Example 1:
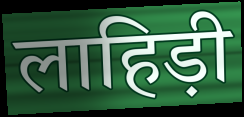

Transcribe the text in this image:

लाहिड़ी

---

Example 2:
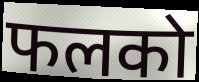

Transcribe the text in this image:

फलको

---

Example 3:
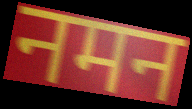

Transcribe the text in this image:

नमन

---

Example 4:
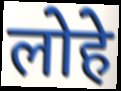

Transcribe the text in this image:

लोहे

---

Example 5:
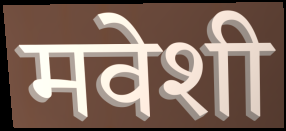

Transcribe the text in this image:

मवेशी